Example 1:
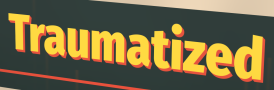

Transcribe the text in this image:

Traumatized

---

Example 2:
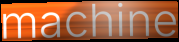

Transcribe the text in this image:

machine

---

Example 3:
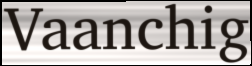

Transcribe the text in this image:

Vaanchig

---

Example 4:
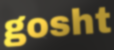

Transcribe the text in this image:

gosht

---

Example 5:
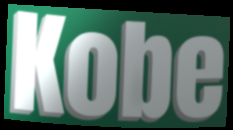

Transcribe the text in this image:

Kobe